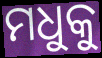
ମଧୁକୁ